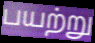
பயற்று